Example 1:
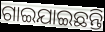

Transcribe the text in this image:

ଗାଇଯାଇଛନ୍ତି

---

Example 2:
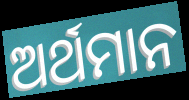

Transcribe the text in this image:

ଅର୍ଥମାନ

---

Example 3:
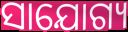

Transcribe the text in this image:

ସାଯୋଗ୍ୟ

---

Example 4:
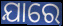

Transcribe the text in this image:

ଯାରେ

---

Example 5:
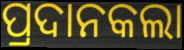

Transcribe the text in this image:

ପ୍ରଦାନକଲା